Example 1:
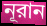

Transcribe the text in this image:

নূরান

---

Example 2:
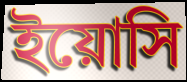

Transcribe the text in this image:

ইয়োসি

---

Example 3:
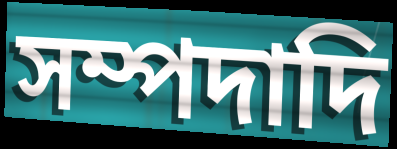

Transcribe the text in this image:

সম্পদাদি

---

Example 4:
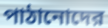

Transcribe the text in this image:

পাঠানোদের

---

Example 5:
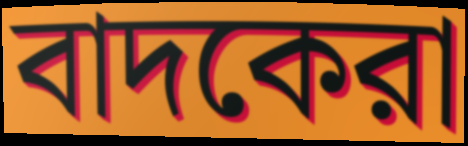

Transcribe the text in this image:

বাদকেরা